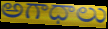
అగాధాలు